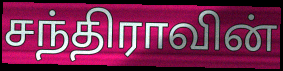
சந்திராவின்